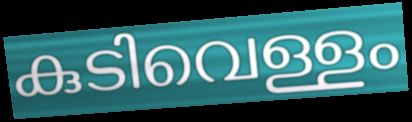
കുടിവെള്ളം